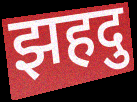
झहदु